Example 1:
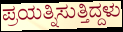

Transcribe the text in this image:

ಪ್ರಯತ್ನಿಸುತ್ತಿದ್ದಳು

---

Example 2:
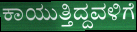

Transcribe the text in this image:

ಕಾಯುತ್ತಿದ್ದವಳಿಗೆ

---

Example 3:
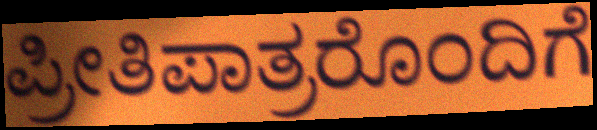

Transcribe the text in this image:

ಪ್ರೀತಿಪಾತ್ರರೊಂದಿಗೆ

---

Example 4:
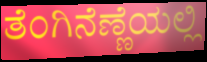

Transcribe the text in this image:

ತೆಂಗಿನೆಣ್ಣೆಯಲ್ಲಿ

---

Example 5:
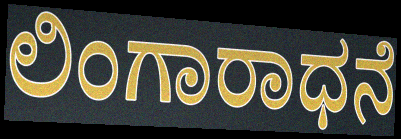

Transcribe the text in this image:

ಲಿಂಗಾರಾಧನೆ